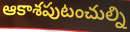
ఆకాశపుటంచుల్ని